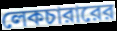
লেকচারারের